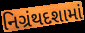
નિગ્રંથદશામાં